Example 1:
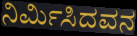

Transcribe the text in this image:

ನಿರ್ಮಿಸಿದವನ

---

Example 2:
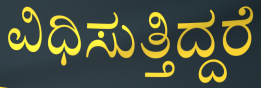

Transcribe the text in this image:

ವಿಧಿಸುತ್ತಿದ್ದರೆ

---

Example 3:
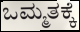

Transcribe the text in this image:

ಒಮ್ಮತಕ್ಕೆ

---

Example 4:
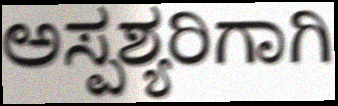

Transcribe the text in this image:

ಅಸ್ಪಶ್ಯರಿಗಾಗಿ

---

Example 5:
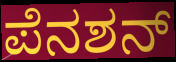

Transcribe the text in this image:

ಪೆನಶನ್